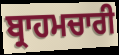
ਬ੍ਰਾਹਮਚਾਰੀ